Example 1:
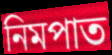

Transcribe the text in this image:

নিমপাত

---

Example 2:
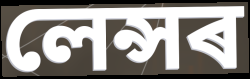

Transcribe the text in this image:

লেন্সৰ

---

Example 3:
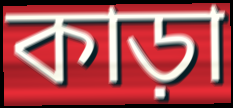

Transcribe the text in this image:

কাড়া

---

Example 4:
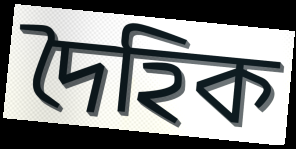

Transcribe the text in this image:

দৈহিক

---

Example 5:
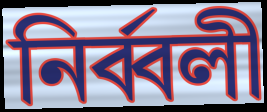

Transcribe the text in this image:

নিৰ্ব্বলী